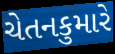
ચેતનકુમારે